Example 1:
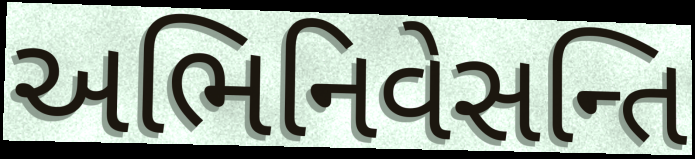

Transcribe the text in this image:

અભિનિવેસન્તિ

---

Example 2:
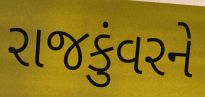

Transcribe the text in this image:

રાજકુંવરને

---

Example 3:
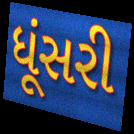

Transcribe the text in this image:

ધૂંસરી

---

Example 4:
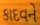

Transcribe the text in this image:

કાદવને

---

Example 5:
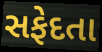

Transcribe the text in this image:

સફેદતા